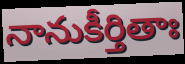
నానుకీర్తితాః